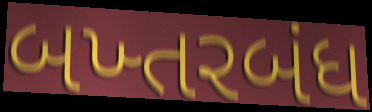
બખ્તરબંધ